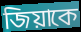
জিয়াকে